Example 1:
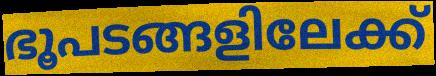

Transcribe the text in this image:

ഭൂപടങ്ങളിലേക്ക്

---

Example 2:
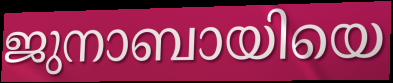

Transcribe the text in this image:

ജുനാബായിയെ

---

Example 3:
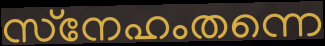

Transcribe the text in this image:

സ്‌നേഹംതന്നെ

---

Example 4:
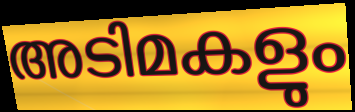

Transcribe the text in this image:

അടിമകളും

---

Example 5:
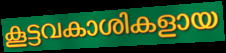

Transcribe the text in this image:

കൂട്ടവകാശികളായ